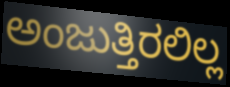
ಅಂಜುತ್ತಿರಲಿಲ್ಲ